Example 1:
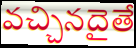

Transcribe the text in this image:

వచ్చినదైతే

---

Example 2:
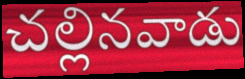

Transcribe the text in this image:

చల్లినవాడు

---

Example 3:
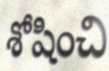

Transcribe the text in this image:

శోషించి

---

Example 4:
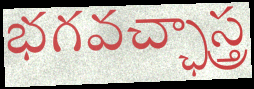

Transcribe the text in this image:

భగవచ్ఛాస్త్ర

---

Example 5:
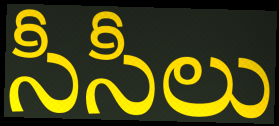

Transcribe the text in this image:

సీసీలు